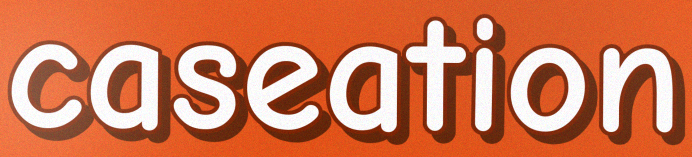
caseation